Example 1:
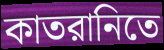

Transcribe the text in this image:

কাতরানিতে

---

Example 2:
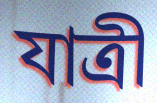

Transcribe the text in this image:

যাত্রী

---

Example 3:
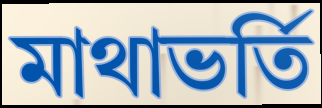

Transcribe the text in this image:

মাথাভর্তি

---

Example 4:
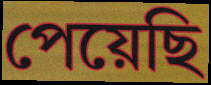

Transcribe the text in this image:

পেয়েছি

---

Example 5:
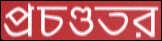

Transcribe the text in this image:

প্রচণ্ডতর